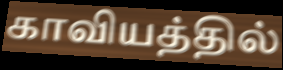
காவியத்தில்